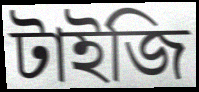
টাইজি